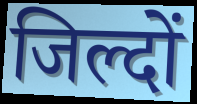
जिल्दों